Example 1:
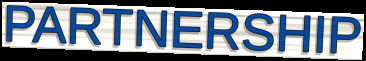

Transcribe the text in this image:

PARTNERSHIP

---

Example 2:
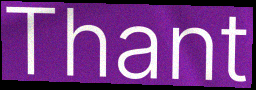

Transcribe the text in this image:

Thant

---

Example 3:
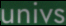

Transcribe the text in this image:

univs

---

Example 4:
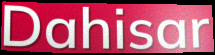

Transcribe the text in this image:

Dahisar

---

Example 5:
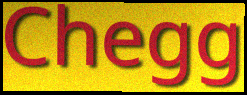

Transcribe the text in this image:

Chegg